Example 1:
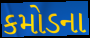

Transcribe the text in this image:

કમોડના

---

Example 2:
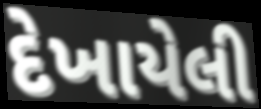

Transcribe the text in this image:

દેખાયેલી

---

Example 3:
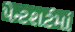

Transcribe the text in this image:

પેન્ટશર્ટમાં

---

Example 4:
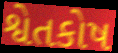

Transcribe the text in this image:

શ્વેતકોષ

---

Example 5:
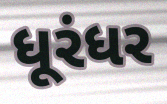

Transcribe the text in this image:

ધૂરંધર